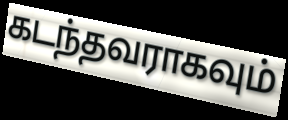
கடந்தவராகவும்